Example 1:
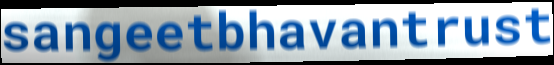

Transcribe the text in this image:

sangeetbhavantrust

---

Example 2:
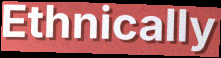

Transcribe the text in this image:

Ethnically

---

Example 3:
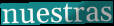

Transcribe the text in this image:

nuestras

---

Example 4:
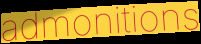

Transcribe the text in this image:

admonitions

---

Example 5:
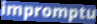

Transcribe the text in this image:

impromptu